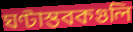
ঘণ্টাস্তবকগুলি